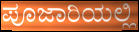
ಪೂಜಾರಿಯಲ್ಲಿ